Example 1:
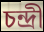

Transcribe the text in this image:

চন্দ্রী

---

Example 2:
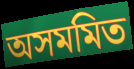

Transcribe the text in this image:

অসমমিত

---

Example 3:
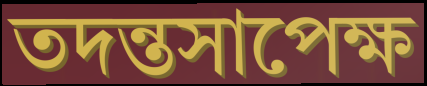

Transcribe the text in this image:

তদন্তসাপেক্ষ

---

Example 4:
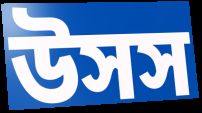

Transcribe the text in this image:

উসস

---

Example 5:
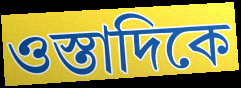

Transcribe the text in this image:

ওস্তাদিকে